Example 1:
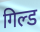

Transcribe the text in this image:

गिल्ड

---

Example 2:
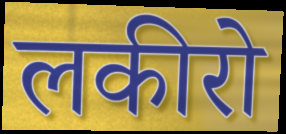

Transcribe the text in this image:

लकीरो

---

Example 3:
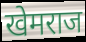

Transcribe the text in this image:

खेमराज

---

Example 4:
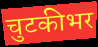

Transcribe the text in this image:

चुटकीभर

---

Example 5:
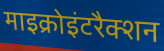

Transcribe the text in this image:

माइक्रोइंटरैक्शन